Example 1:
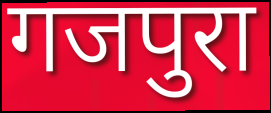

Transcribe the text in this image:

गजपुरा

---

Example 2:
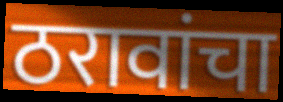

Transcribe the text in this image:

ठरावांचा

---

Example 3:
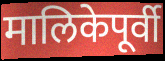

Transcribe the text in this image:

मालिकेपूर्वी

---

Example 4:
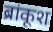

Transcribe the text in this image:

ब्रांकूश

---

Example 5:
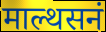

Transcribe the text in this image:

माल्थसनं